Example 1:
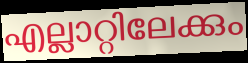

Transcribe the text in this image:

എല്ലാറ്റിലേക്കും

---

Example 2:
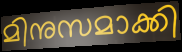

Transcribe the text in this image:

മിനുസമാക്കി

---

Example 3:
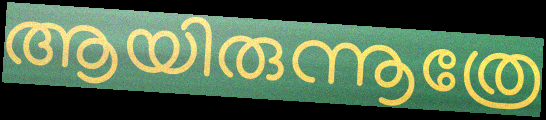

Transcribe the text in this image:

ആയിരുന്നൂത്രേ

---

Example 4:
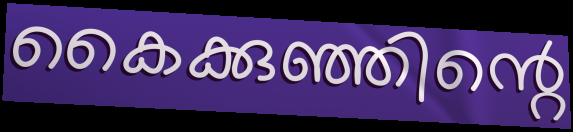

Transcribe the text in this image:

കൈക്കുഞ്ഞിന്റെ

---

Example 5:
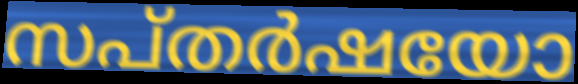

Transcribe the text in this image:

സപ്തർഷയോ